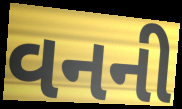
વનની